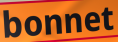
bonnet